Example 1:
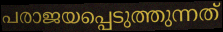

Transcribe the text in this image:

പരാജയപ്പെടുത്തുന്നത്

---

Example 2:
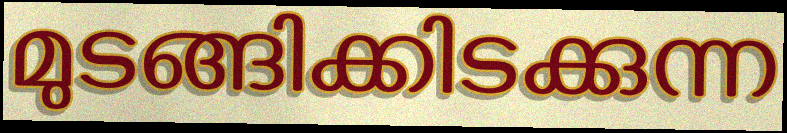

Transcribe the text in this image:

മുടങ്ങിക്കിടക്കുന്ന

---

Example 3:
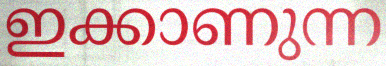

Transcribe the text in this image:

ഇക്കാണുന്ന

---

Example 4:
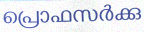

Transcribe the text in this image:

പ്രൊഫസർക്കു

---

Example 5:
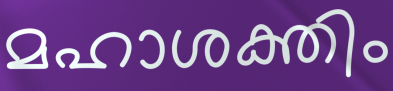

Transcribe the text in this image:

മഹാശക്തിം